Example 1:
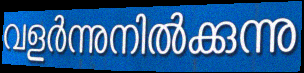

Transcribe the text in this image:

വളർന്നുനിൽക്കുന്നു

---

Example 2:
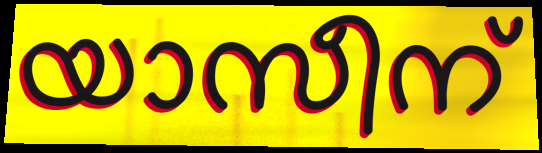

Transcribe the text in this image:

യാസീന്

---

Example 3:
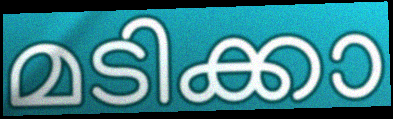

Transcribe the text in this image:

മടിക്കാ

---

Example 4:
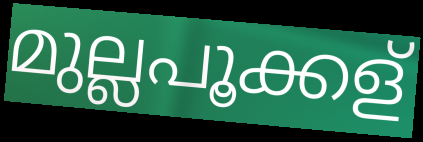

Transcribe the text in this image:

മുല്ലപൂക്കള്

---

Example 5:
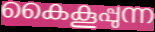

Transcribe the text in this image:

കൈകൂപ്പുന്ന